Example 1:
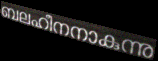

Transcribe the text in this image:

ബലഹീനനാകുന്നു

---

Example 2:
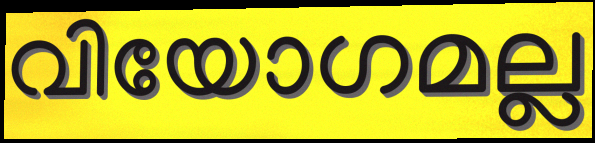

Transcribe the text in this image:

വിയോഗമല്ല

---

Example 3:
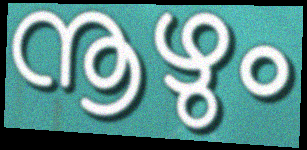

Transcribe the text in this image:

നൂഴും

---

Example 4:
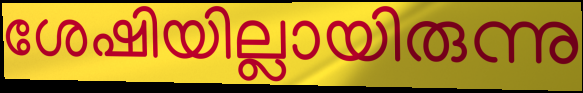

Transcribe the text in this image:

ശേഷിയില്ലായിരുന്നു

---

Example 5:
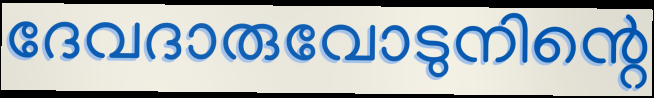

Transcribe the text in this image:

ദേവദാരുവോടുനിന്റെ